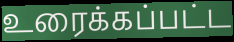
உரைக்கப்பட்ட